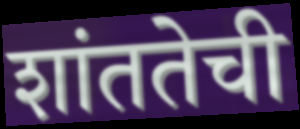
शांततेची